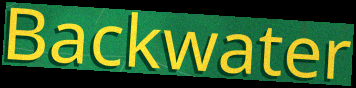
Backwater